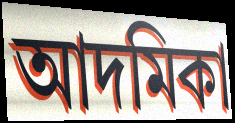
আদমিকা